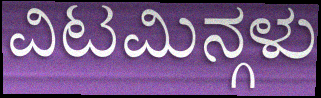
ವಿಟಮಿನ್ಗಳು